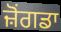
ਜ਼ੋਂਗਡਾ